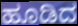
ಹೂಡಿದ